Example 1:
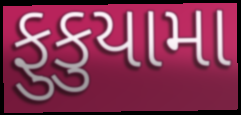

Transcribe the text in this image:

ફુકુયામા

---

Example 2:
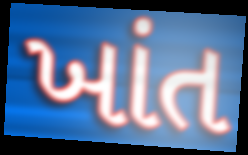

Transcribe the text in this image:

ખાંત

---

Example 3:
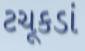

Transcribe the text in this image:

ટચૂકડાં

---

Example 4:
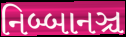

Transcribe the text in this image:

નિબ્બાનઞ્ચ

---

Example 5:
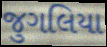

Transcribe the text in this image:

જુગલિયા